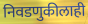
निवडणुकीलाही